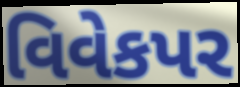
વિવેકપર